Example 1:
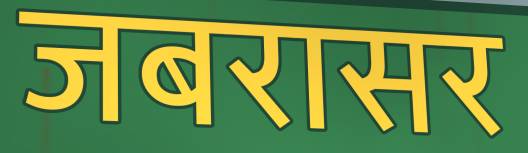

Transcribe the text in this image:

जबरासर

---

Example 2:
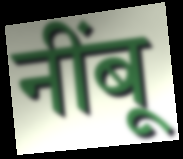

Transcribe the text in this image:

नींबू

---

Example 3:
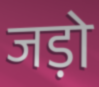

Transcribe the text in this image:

जड़ो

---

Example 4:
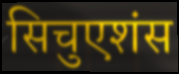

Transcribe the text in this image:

सिचुएशंस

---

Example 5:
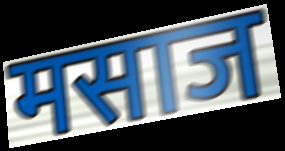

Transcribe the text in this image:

मसाज